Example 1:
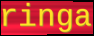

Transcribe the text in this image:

ringa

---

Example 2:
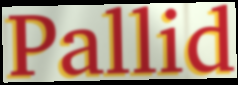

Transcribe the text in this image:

Pallid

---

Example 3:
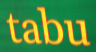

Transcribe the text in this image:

tabu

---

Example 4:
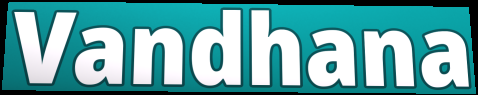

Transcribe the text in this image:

Vandhana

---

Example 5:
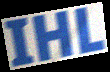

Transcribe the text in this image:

IHL